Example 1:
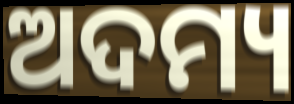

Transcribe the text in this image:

ଅଦମ୍ୟ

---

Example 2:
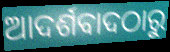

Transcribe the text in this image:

ଆଦର୍ଶବାଦଠାରୁ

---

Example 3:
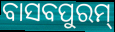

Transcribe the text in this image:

ବାସବପୁରମ୍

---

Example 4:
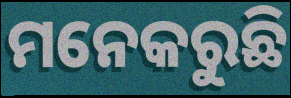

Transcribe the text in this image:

ମନେକରୁଛି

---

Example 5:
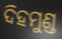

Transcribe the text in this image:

ଦିହମୁଣ୍ଡ